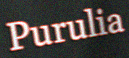
Purulia